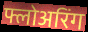
फ्लोअरिंग